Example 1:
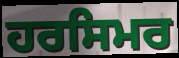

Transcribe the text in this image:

ਹਰਸਿਮਰ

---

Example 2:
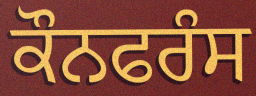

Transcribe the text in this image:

ਕੌਨਫਰੰਸ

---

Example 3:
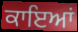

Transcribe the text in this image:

ਕਾਇਆਂ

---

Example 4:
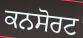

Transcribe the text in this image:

ਕਨਸੋਰਟ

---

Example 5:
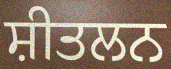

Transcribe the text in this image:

ਸ਼ੀਤਲਨ